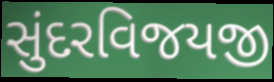
સુંદરવિજયજી